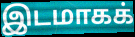
இடமாகக்